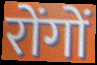
रोंगों